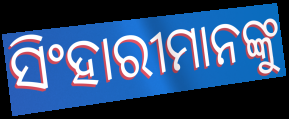
ସିଂହାରୀମାନଙ୍କୁ